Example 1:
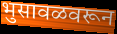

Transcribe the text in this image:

भुसावळवरून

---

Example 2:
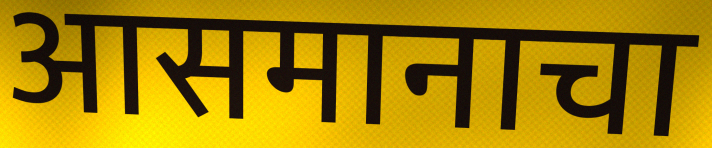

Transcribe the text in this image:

आसमानाचा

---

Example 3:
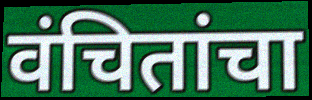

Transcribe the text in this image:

वंचितांचा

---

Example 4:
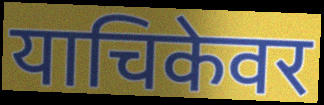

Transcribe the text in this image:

याचिकेवर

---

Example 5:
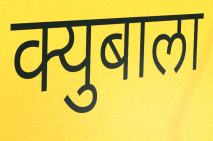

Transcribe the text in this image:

क्युबाला